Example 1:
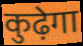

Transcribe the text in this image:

कुढ़ेगा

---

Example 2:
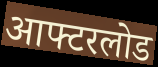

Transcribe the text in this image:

आफ्टरलोड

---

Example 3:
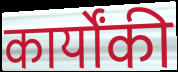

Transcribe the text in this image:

कार्योंकी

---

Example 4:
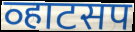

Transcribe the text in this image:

व्हाटसप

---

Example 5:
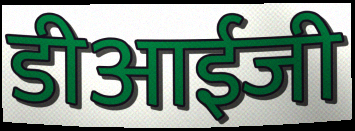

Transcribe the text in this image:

डीआईजी